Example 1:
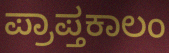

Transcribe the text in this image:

ಪ್ರಾಪ್ತಕಾಲಂ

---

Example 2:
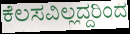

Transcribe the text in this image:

ಕೆಲಸವಿಲ್ಲದ್ದರಿಂದ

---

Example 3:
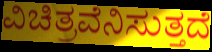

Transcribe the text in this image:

ವಿಚಿತ್ರವೆನಿಸುತ್ತದೆ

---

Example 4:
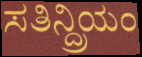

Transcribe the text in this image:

ಸತಿನ್ದ್ರಿಯಂ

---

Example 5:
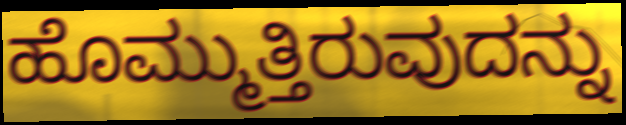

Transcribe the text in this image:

ಹೊಮ್ಮುತ್ತಿರುವುದನ್ನು